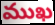
ముఖ